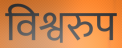
विश्वरुप